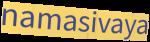
namasivaya